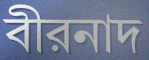
বীরনাদ